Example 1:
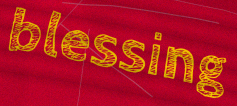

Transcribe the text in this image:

blessing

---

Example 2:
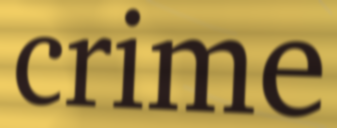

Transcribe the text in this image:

crime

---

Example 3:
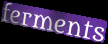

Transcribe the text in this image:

ferments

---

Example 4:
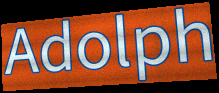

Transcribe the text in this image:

Adolph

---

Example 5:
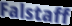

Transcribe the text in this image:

Falstaff